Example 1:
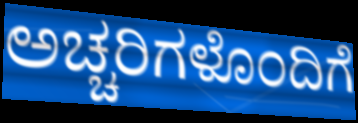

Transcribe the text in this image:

ಅಚ್ಚರಿಗಳೊಂದಿಗೆ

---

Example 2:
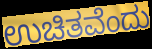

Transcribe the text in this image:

ಉಚಿತವೆಂದು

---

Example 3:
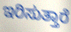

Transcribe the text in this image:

ಇರಿಸುತ್ತಾರೆ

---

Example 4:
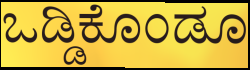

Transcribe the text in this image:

ಒಡ್ಡಿಕೊಂಡೂ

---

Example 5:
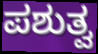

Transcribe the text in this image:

ಪಶುತ್ವ